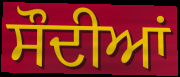
ਸੌਦੀਆਂ